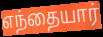
எந்தையார்